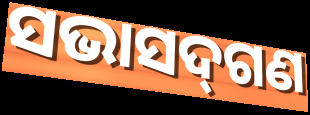
ସଭାସଦ୍‌ଗଣ